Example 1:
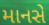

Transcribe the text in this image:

માનસે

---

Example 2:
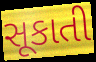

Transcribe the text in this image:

સૂકાતી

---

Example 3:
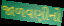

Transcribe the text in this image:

જાળવણીનો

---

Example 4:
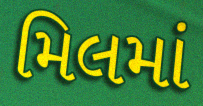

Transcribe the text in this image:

મિલમાં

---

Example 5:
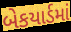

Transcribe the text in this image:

બેકયાર્ડમાં